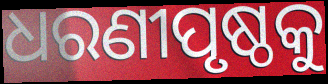
ଧରଣୀପୃଷ୍ଠକୁ